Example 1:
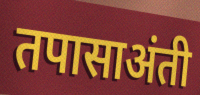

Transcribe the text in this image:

तपासाअंती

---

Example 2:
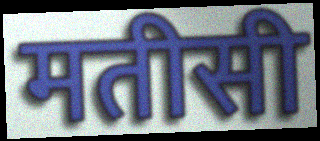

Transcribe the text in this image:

मतीसी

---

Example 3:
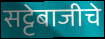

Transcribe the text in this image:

सट्टेबाजीचे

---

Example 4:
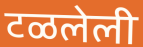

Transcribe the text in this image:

टळलेली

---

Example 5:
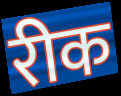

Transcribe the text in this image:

रीक